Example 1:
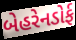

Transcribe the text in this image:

બેહરેનડોર્ફ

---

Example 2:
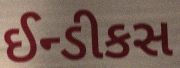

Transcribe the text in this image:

ઈન્ડીકસ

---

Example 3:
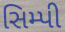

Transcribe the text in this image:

સિમ્પી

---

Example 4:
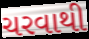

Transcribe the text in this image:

ચરવાથી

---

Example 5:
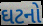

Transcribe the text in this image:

ઘટનો